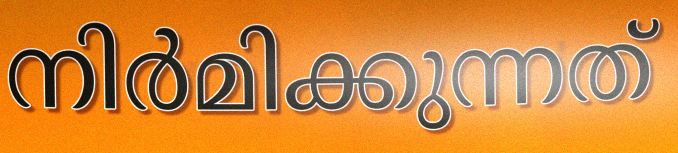
നിർമിക്കുന്നത്